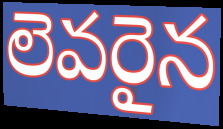
లెవరైన